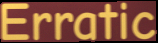
Erratic